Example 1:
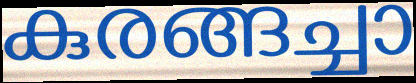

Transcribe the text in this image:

കുരങ്ങച്ചാ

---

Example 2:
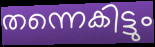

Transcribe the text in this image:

തന്നെകിട്ടും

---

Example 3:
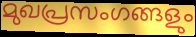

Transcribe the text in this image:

മുഖപ്രസംഗങ്ങളും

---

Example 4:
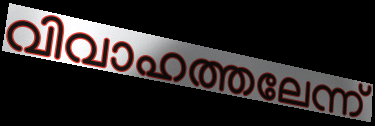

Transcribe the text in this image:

വിവാഹത്തലേന്ന്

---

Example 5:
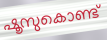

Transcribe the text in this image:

ഷൂസുകൊണ്ട്